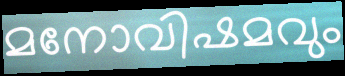
മനോവിഷമവും